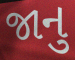
જાનુ